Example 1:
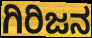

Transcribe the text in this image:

ಗಿರಿಜನ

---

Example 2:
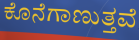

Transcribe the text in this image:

ಕೊನೆಗಾಣುತ್ತವೆ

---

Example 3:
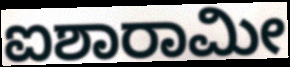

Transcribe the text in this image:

ಐಶಾರಾಮೀ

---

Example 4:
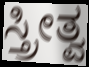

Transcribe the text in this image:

ಸ್ತ್ರೀತ್ವ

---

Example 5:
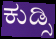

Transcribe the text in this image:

ಕುಡ್ಸಿ